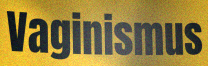
Vaginismus